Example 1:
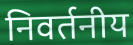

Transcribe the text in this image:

निवर्तनीय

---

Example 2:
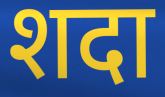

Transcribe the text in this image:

शदा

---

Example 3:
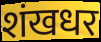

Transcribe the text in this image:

शंखधर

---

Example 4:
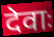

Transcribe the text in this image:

देवाः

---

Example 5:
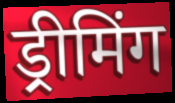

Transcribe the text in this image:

ड्रीमिंग